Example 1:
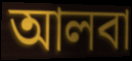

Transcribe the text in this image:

আলবা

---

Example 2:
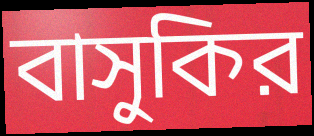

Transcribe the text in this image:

বাসুকির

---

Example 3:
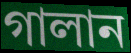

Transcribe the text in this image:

গালান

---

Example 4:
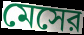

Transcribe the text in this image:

মেসের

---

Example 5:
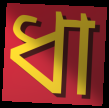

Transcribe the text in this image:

ধা